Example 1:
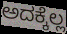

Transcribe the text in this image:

ಅದಕ್ಕೆಲ್ಲ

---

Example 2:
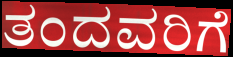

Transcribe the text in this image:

ತಂದವರಿಗೆ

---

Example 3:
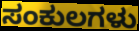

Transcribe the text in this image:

ಸಂಕುಲಗಳು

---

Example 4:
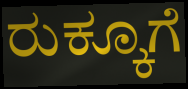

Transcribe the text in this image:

ರುಕ್ಕೂಗೆ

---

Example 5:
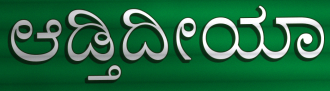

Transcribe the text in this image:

ಆಡ್ತಿದೀಯಾ